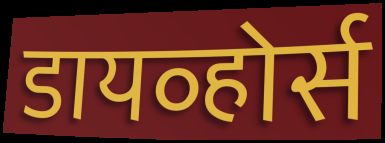
डायव्होर्स